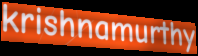
krishnamurthy